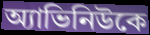
অ্যাভিনিউকে